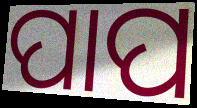
ପାପ